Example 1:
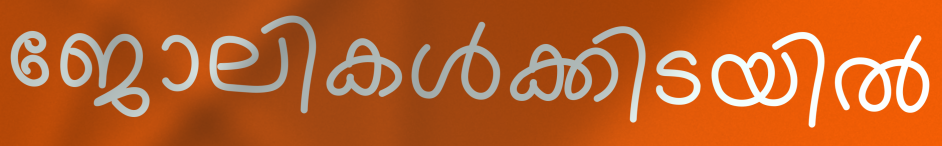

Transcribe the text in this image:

ജോലികൾക്കിടയിൽ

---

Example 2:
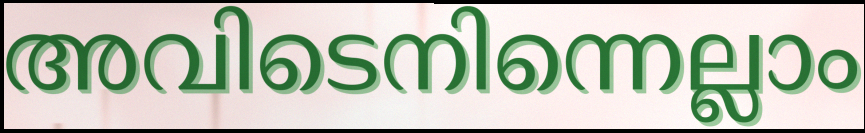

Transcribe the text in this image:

അവിടെനിന്നെല്ലാം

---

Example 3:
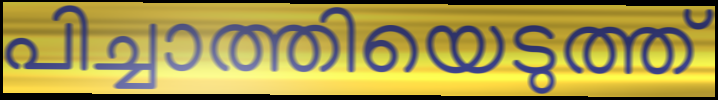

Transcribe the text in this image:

പിച്ചാത്തിയെടുത്ത്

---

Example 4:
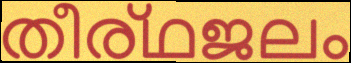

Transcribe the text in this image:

തീര്ഥജലം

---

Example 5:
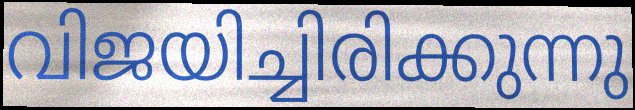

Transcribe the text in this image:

വിജയിച്ചിരിക്കുന്നു